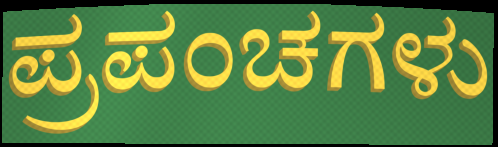
ಪ್ರಪಂಚಗಳು